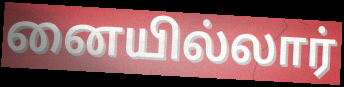
னையில்லார்